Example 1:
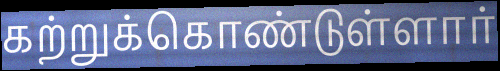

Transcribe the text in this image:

கற்றுக்கொண்டுள்ளார்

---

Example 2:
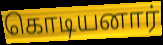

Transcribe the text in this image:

கொடியனார்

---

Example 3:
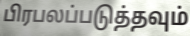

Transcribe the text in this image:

பிரபலப்படுத்தவும்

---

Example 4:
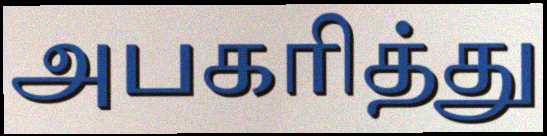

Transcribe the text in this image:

அபகரித்து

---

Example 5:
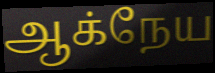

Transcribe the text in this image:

ஆக்நேய